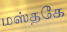
மஸ்தகே